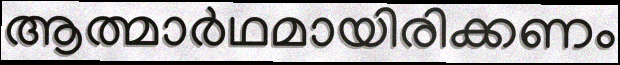
ആത്മാർഥമായിരിക്കണം